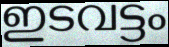
ഇടവട്ടം